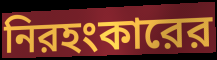
নিরহংকারের